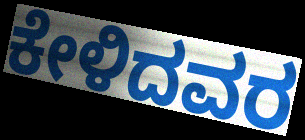
ಕೇಳಿದವರ